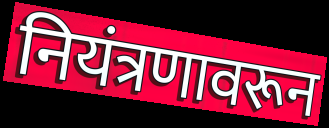
नियंत्रणावरून